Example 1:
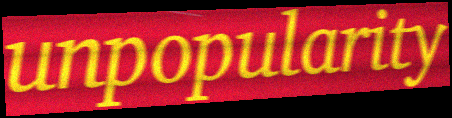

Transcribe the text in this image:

unpopularity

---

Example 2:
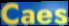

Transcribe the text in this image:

Caes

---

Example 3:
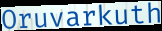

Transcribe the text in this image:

Oruvarkuth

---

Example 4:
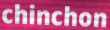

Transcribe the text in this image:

chinchon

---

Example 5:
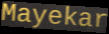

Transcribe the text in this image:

Mayekar